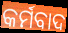
କର୍ମବାଦ